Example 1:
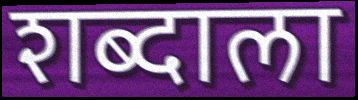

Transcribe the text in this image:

शब्दाला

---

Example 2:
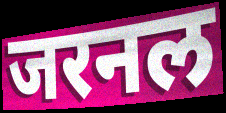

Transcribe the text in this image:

जरनल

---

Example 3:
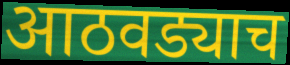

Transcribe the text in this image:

आठवड्याच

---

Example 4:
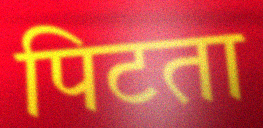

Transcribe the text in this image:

पिटता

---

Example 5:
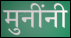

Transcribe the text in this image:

मुनींनी